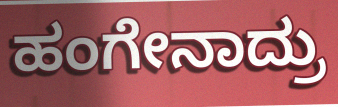
ಹಂಗೇನಾದ್ರು